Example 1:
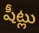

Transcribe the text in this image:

షీట్లు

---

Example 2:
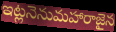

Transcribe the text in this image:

ఇట్లనెనుమహారాజైన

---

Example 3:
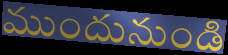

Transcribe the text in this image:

ముందునుండి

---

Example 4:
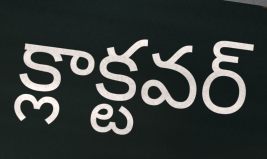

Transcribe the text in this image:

క్లాక్టవర్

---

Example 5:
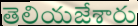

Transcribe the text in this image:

తెలియజేశారు